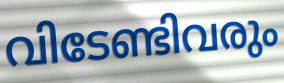
വിടേണ്ടിവരും